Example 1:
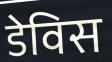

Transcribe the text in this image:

डेविस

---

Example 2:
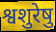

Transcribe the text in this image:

श्वशुरेषु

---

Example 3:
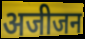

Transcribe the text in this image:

अजीजन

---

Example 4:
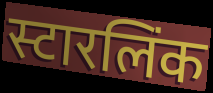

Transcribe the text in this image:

स्टारलिंक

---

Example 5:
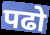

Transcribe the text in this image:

पढो